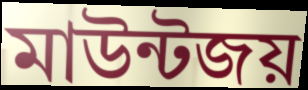
মাউন্টজয়